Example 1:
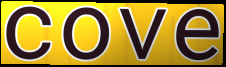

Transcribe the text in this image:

cove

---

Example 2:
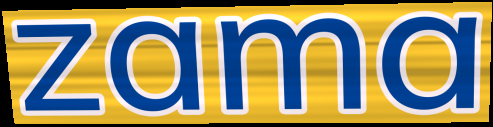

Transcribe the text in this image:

zama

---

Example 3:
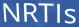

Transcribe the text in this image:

NRTIs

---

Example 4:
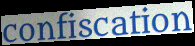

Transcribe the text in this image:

confiscation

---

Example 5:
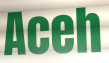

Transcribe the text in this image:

Aceh